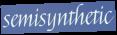
semisynthetic